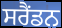
ਸਰੈਂਡਨ